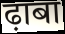
ढ़ाबा